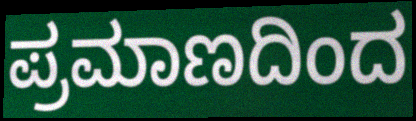
ಪ್ರಮಾಣದಿಂದ